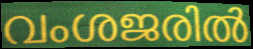
വംശജരിൽ